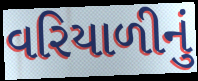
વરિયાળીનું